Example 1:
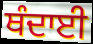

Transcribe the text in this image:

ਥੰਦਾਈ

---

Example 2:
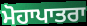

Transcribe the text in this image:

ਮੋਹਾਪਾਤਰਾ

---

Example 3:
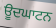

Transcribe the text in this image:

ਊਦਘਾਟਨ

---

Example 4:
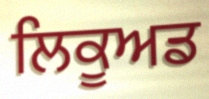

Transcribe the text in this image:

ਲਿਕੂਅਡ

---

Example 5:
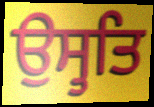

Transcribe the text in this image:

ਉਸ੍ਤਤਿ